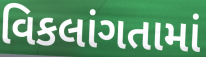
વિકલાંગતામાં